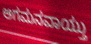
ಆಗಮನವಾಯ್ತು